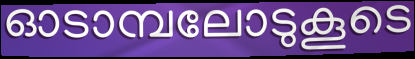
ഓടാമ്പലോടുകൂടെ